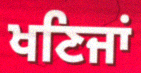
ਖਣਿਜਾਂ